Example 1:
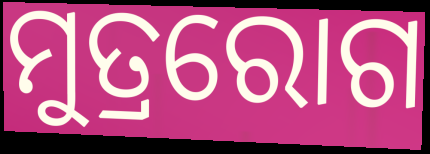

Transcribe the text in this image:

ମୁତ୍ରରୋଗ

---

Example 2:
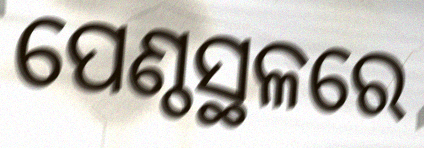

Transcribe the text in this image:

ପେଣ୍ଠସ୍ଥଳରେ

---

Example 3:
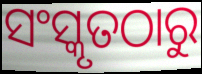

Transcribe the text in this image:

ସଂସ୍କୃତଠାରୁ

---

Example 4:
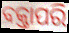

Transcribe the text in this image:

ବକ୍ତାପରି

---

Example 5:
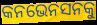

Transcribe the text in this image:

କନଭେନସନକୁ